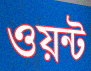
ওয়ন্ট